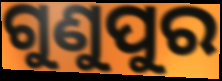
ଗୁଣୁପୁର